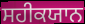
ਸਹੀਕਯਾਨ